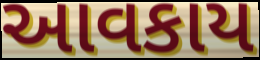
આવકાય